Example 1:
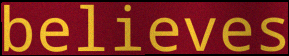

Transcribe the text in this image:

believes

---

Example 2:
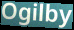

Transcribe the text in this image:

Ogilby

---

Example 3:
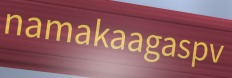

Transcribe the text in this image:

namakaagaspv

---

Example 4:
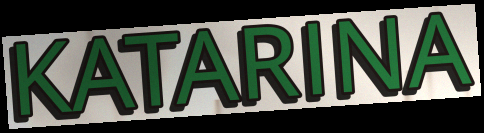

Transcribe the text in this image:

KATARINA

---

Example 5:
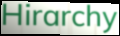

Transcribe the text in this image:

Hirarchy